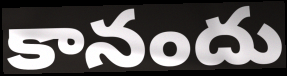
కానందు